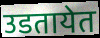
उडतायेत